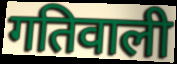
गतिवाली